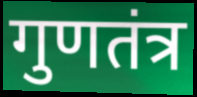
गुणतंत्र